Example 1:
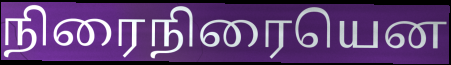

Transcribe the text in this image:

நிரைநிரையென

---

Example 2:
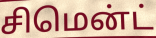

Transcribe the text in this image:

சிமென்ட்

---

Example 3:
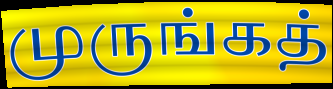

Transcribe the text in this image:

முருங்கத்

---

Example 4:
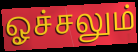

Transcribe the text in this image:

ஓச்சலும்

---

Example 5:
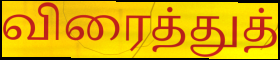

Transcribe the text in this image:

விரைத்துத்